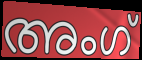
അംഗ്